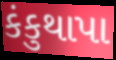
કંકુથાપા